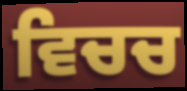
ਵਿਚਚ